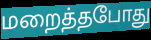
மறைத்தபோது